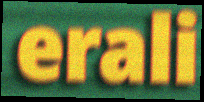
erali